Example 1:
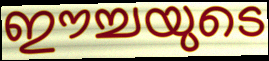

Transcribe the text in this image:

ഈച്ചയുടെ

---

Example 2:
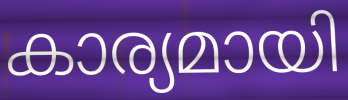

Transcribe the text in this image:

കാര്യമായി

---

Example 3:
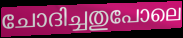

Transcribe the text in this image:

ചോദിച്ചതുപോലെ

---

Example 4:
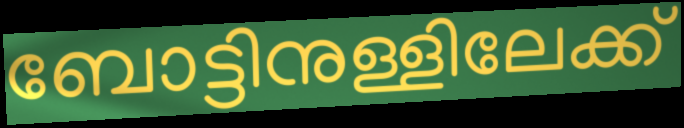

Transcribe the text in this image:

ബോട്ടിനുള്ളിലേക്ക്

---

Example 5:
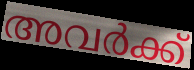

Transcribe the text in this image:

അവർക്ക്